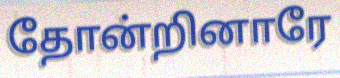
தோன்றினாரே